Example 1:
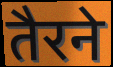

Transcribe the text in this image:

तैरने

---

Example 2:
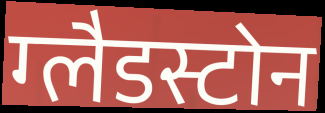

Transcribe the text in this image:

ग्लैडस्टोन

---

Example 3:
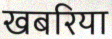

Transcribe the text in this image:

खबरिया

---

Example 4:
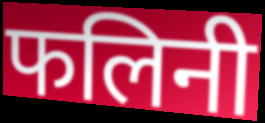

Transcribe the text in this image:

फलिनी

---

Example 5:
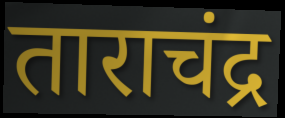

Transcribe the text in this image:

ताराचंद्र